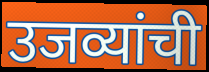
उजव्यांची